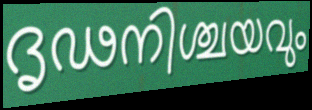
ദൃഢനിശ്ചയവും